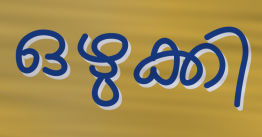
ഒഴുക്കി